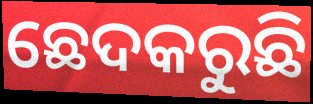
ଛେଦକରୁଛି